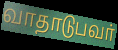
வாதாடுபவர்